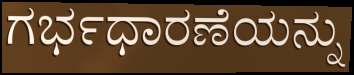
ಗರ್ಭಧಾರಣೆಯನ್ನು